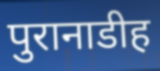
पुरानाडीह